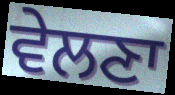
ਵੇਲਣਾ